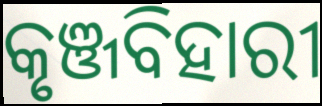
କୃଞ୍ଜବିହାରୀ